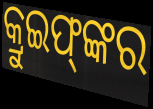
କ୍ରୁଇଫ୍‌ଙ୍କର